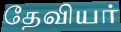
தேவியர்